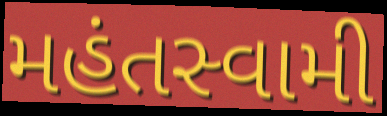
મહંતસ્વામી